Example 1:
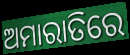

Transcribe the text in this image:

ଅମାରାତିରେ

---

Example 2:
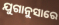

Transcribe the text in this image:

ଯୁଗାନୁସାରେ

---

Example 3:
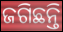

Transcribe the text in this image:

ଜଗିଛନ୍ତି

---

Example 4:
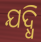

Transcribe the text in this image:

ଯଦ୍ଧି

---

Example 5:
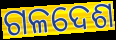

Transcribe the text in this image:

ଗଳଦେଶ